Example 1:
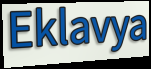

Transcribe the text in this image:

Eklavya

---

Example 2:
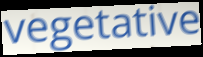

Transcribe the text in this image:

vegetative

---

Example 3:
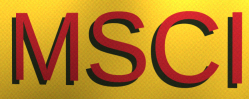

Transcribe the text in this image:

MSCI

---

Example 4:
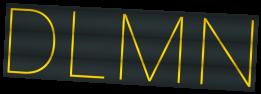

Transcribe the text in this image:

DLMN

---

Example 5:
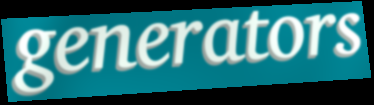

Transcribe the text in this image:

generators